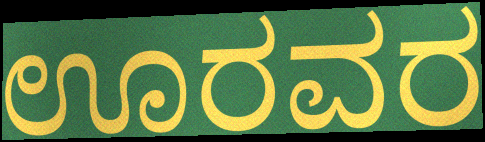
ಊರವರ